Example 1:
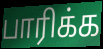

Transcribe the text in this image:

பாரிக்க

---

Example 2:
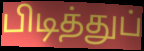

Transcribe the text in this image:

பிடித்துப்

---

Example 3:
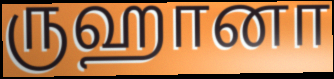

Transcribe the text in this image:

ருஹானா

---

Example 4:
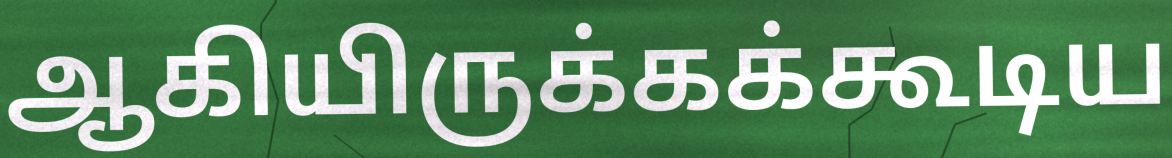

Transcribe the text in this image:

ஆகியிருக்கக்கூடிய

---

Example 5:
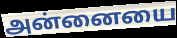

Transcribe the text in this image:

அன்னையை